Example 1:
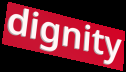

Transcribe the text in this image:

dignity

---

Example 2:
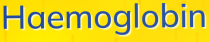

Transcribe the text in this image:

Haemoglobin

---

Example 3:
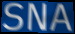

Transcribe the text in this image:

SNA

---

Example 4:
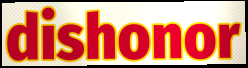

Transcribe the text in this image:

dishonor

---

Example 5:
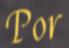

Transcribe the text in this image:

Por